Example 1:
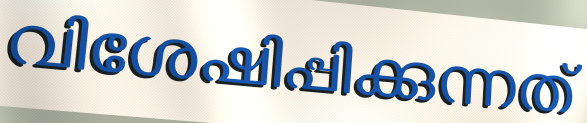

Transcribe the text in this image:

വിശേഷിപ്പിക്കുന്നത്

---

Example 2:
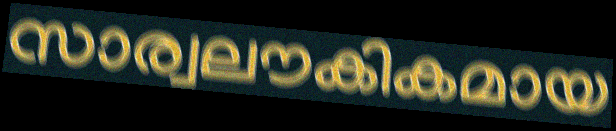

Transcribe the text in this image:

സാര്വലൗകികമായ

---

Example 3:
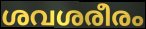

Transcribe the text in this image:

ശവശരീരം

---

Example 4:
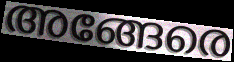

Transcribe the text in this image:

അങ്ങേരെ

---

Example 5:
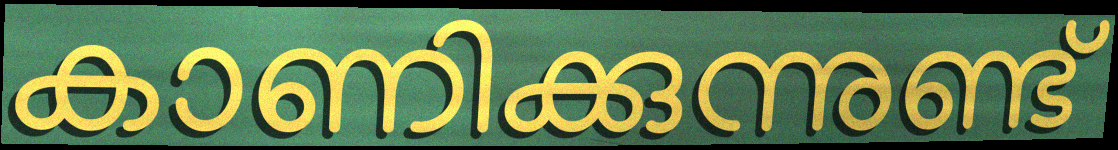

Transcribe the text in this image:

കാണിക്കുന്നുണ്ട്